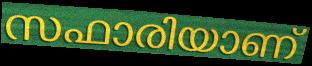
സഫാരിയാണ്